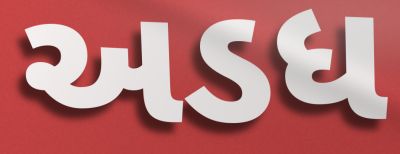
અડધ